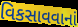
વિકસાવવાનાં